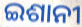
ଇଶାନୀ